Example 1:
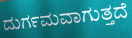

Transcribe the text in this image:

ದುರ್ಗಮವಾಗುತ್ತದೆ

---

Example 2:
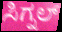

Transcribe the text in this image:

ಸಿಗ್ನಲ್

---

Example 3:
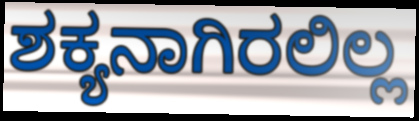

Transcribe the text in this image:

ಶಕ್ಯನಾಗಿರಲಿಲ್ಲ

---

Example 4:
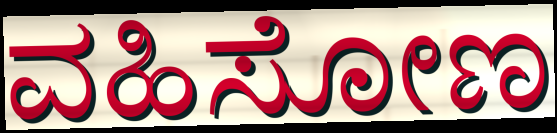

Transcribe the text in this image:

ವಹಿಸೋಣ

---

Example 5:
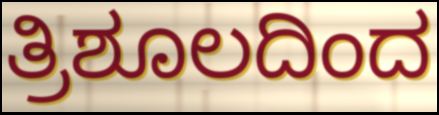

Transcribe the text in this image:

ತ್ರಿಶೂಲದಿಂದ